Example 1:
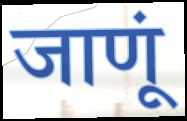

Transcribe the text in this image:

जाणूं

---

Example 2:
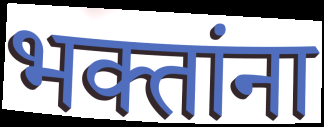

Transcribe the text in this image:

भक्तांना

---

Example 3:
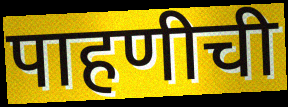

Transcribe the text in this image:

पाहणीची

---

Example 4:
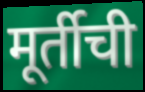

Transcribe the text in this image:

मूर्तीची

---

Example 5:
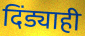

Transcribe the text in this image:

दिंड्याही